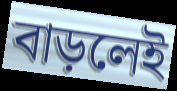
বাড়লেই